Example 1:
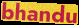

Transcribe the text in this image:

bhandu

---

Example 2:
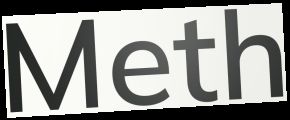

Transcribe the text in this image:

Meth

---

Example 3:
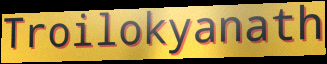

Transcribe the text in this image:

Troilokyanath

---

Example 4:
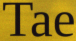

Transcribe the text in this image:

Tae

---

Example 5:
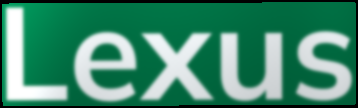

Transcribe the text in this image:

Lexus